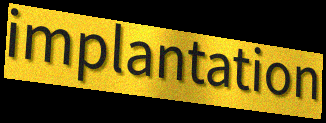
implantation